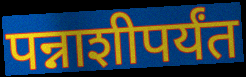
पन्नाशीपर्यंत